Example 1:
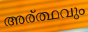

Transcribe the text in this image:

അര്ത്ഥവും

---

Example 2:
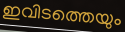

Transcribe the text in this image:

ഇവിടത്തെയും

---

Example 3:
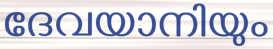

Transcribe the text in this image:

ദേവയാനിയും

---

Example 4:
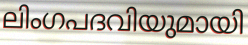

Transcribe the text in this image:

ലിംഗപദവിയുമായി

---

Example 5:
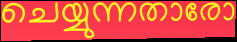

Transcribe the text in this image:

ചെയ്യുന്നതാരോ